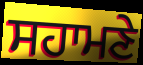
ਸਹਾਮਣੇ